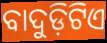
ବାଦୁଡ଼ିଟିଏ